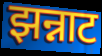
झन्नाट